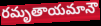
రమృతాయమానౌ